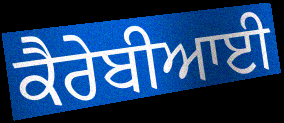
ਕੈਰੇਬੀਆਈ